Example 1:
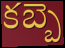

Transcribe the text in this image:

కబ్బె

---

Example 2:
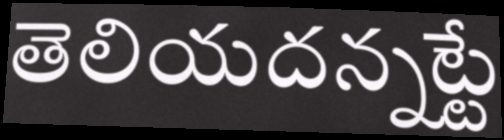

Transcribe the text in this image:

తెలియదన్నట్టే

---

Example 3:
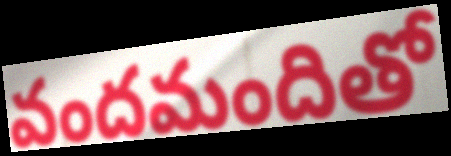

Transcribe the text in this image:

వందమందితో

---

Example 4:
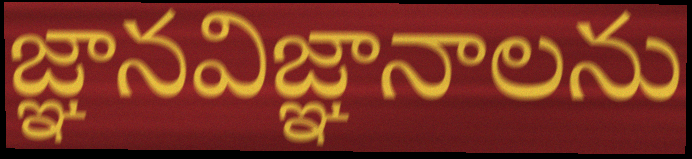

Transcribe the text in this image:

జ్ఞానవిజ్ఞానాలను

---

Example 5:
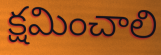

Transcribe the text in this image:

క్షమించాలి